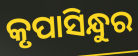
କୃପାସିନ୍ଧୁର